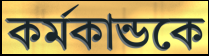
কর্মকান্ডকে